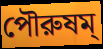
পৌরুষম্